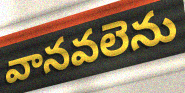
వానవలెను